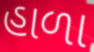
હાળા